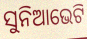
ସୁନିଆଭେଟି